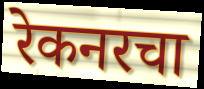
रेकनरचा